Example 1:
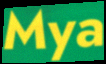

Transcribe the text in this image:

Mya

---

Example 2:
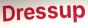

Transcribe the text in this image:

Dressup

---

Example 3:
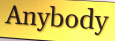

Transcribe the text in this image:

Anybody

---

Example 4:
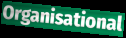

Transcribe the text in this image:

Organisational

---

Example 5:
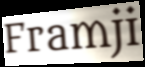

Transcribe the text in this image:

Framji